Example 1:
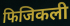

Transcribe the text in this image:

फिजिकली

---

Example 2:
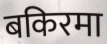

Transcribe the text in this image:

बकिरमा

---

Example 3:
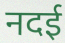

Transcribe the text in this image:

नदई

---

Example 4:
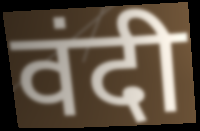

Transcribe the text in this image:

वंदी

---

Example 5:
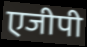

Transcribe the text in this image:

एजीपी